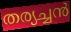
തര്യച്ചൻ